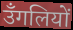
उँगलियों